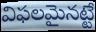
విఫలమైనట్టే